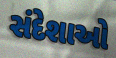
સંદેશાઓ